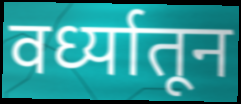
वर्ध्यातून